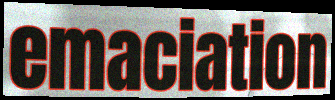
emaciation